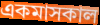
একমাসকাল